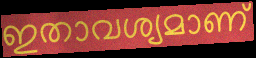
ഇതാവശ്യമാണ്